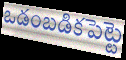
ఒడంబడికపెట్టె